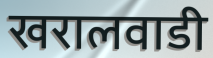
खरालवाडी